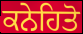
ਕਨੇਹਿਤੋ